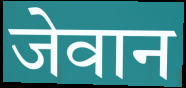
जेवान